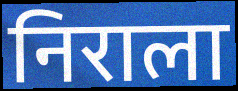
निराला